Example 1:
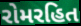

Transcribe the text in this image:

રોમરહિત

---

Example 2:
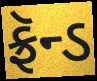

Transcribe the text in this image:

ફ્રૅન્ડ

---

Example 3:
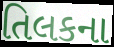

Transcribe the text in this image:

તિલકના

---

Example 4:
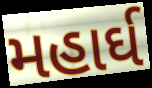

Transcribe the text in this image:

મહાર્ઘ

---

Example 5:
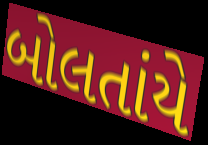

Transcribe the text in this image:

બોલતાંયે